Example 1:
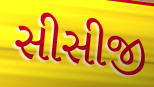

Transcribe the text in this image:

સીસીજી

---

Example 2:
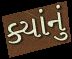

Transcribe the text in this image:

ક્યાંનું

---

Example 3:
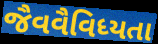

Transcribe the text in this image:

જૈવવૈવિધ્યતા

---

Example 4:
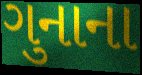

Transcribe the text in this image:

ગુનાના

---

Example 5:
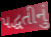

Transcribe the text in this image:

પદ્ધતીનું